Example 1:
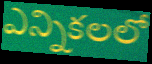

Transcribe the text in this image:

ఎన్నికలలో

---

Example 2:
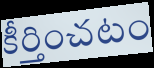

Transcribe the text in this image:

కీర్తించటం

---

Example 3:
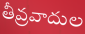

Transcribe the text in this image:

తీవ్రవాదుల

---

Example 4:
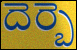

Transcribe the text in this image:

దెర్బె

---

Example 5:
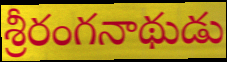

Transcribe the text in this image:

శ్రీరంగనాథుడు